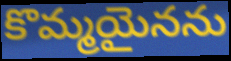
కొమ్మయైనను